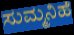
ಸುಮ್ಮನಿಹೆ